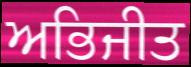
ਅਭਿਜੀਤ